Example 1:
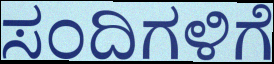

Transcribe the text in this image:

ಸಂದಿಗಳಿಗೆ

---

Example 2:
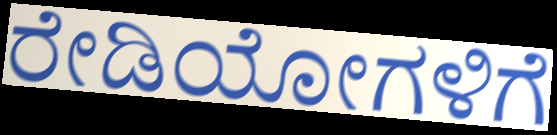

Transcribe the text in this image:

ರೇಡಿಯೋಗಳಿಗೆ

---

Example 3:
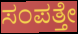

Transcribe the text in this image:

ಸಂಪತ್ತೇ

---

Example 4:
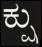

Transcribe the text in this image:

ಕ್ಷು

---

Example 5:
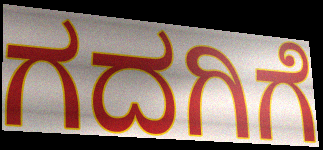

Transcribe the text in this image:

ಗದಗಿಗೆ